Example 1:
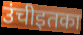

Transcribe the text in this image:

उंचीइतका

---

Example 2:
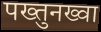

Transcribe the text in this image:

पख्तुनख्वा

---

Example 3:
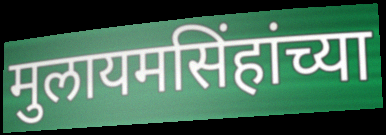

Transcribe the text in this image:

मुलायमसिंहांच्या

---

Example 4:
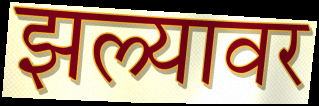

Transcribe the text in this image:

झल्यावर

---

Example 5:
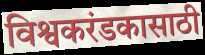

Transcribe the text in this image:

विश्वकरंडकासाठी